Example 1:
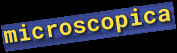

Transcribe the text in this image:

microscopica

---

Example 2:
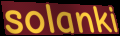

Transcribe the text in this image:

solanki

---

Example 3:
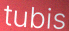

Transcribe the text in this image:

tubis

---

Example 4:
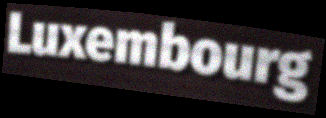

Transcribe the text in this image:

Luxembourg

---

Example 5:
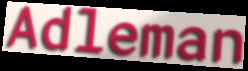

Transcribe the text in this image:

Adleman